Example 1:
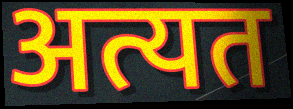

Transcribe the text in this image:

अत्यत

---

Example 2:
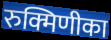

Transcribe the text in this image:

रुक्मिणीका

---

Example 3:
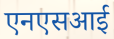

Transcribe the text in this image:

एनएसआई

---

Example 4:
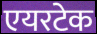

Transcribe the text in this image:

एयरटेक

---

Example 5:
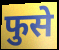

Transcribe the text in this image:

फुसे